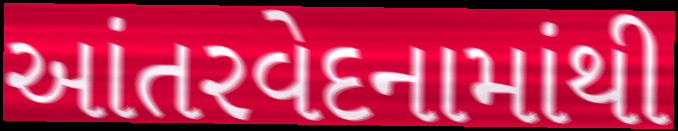
આંતરવેદનામાંથી